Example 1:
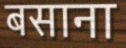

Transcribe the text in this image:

बसाना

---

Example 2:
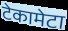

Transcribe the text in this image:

टेकामेटा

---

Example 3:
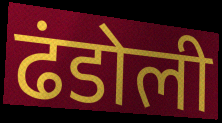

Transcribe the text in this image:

ढंडोली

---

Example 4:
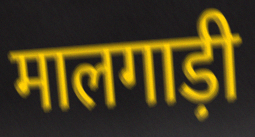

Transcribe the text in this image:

मालगाड़ी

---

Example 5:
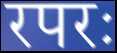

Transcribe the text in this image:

रपरः